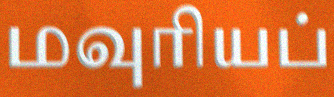
மவுரியப்